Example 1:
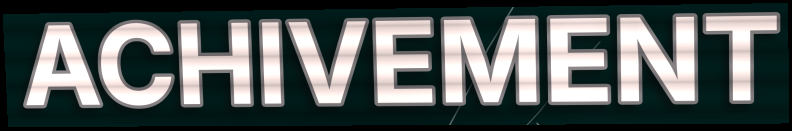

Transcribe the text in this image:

ACHIVEMENT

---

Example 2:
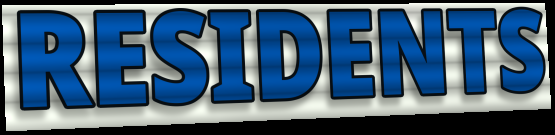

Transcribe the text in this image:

RESIDENTS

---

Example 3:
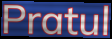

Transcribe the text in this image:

Pratul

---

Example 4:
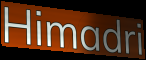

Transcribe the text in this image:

Himadri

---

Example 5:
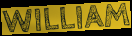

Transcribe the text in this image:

WILLIAM